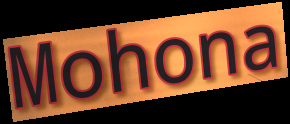
Mohona